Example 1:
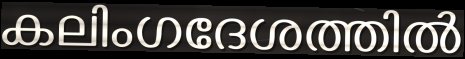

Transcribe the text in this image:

കലിംഗദേശത്തിൽ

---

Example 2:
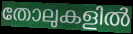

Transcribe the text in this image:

തോലുകളിൽ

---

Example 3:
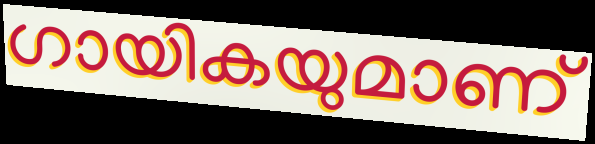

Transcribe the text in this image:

ഗായികയുമാണ്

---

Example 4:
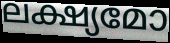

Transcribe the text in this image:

ലക്ഷ്യമോ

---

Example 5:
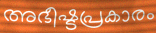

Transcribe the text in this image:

അഭീഷ്ടപ്രകാരം